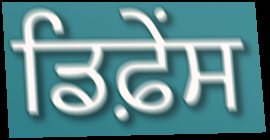
ਡਿਫ਼ੇਂਸ